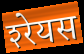
श्रेयस